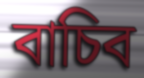
বাচিব